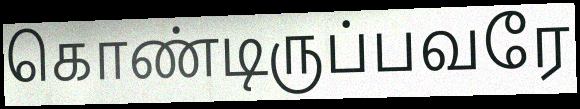
கொண்டிருப்பவரே